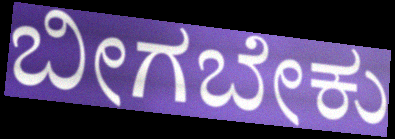
ಬೀಗಬೇಕು